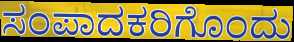
ಸಂಪಾದಕರಿಗೊಂದು